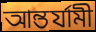
আন্তর্যামী